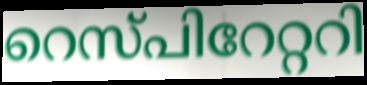
റെസ്പിറേറ്ററി